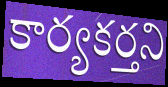
కార్యకర్తని